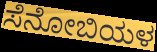
ಸೆನೋಬಿಯಳ